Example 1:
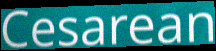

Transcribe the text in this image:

Cesarean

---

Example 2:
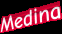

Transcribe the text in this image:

Medina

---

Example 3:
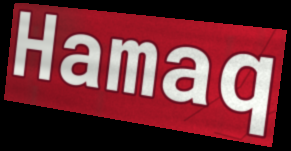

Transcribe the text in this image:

Hamaq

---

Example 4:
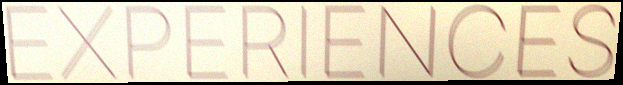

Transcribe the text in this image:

EXPERIENCES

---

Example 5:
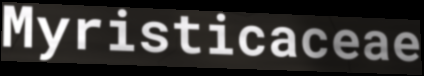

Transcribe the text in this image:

Myristicaceae